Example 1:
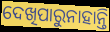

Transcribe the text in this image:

ଦେଖିପାରୁନାହାନ୍ତି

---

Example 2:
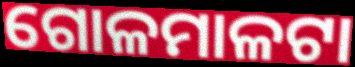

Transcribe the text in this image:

ଗୋଳମାଳଟା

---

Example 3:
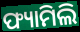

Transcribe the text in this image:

ଫ୍ୟାମିଲି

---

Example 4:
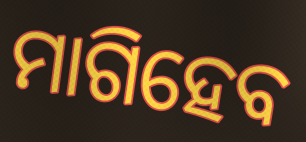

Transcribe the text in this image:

ମାଗିହେବ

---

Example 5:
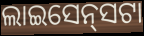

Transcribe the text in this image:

ଲାଇସେନ୍‍ସଟା